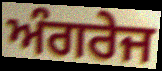
ਅੰਗਰੇਜ